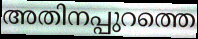
അതിനപ്പുറത്തെ